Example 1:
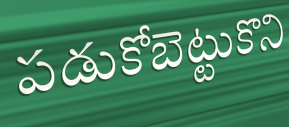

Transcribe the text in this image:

పడుకోబెట్టుకొని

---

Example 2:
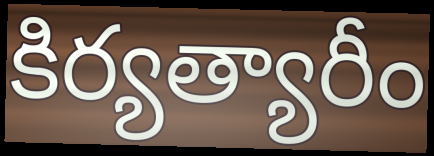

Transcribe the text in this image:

కిర్యత్యారీం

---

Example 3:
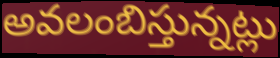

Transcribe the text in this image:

అవలంబిస్తున్నట్లు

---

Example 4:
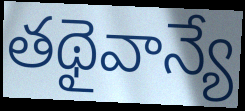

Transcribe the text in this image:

తథైవాన్యే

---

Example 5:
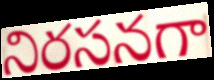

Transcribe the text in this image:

నిరసనగా